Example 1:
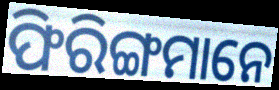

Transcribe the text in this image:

ଫିରିଙ୍ଗମାନେ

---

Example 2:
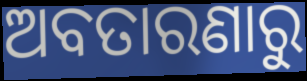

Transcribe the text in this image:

ଅବତାରଣାରୁ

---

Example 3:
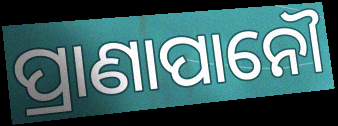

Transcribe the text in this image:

ପ୍ରାଣାପାନୌ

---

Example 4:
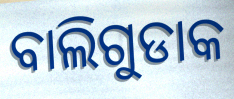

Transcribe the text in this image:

ବାଲିଗୁଡାକ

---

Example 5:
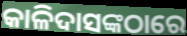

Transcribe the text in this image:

କାଳିଦାସଙ୍କଠାରେ